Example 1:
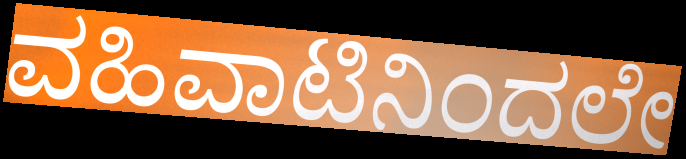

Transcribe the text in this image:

ವಹಿವಾಟಿನಿಂದಲೇ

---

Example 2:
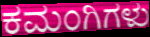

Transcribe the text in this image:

ಕಮಂಗಿಗಳು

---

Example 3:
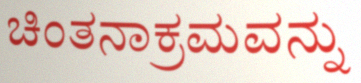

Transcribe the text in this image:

ಚಿಂತನಾಕ್ರಮವನ್ನು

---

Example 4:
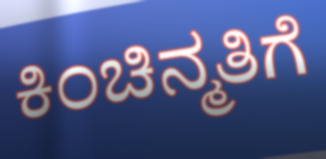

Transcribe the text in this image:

ಕಿಂಚಿನ್ಮತಿಗೆ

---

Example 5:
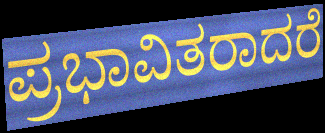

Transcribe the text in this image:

ಪ್ರಭಾವಿತರಾದರೆ